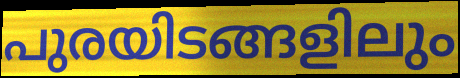
പുരയിടങ്ങളിലും